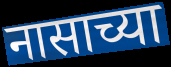
नासाच्या